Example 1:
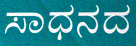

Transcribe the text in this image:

ಸಾಧನದ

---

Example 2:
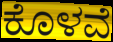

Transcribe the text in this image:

ಕೊಳವೆ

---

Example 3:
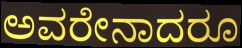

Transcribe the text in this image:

ಅವರೇನಾದರೂ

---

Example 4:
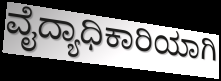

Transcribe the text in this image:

ವೈದ್ಯಾಧಿಕಾರಿಯಾಗಿ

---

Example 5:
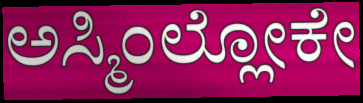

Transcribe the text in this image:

ಅಸ್ಮಿಂಲ್ಲೋಕೇ